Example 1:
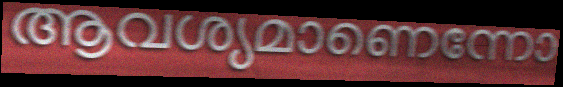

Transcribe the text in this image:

ആവശ്യമാണെന്നോ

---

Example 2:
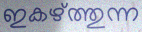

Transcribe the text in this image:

ഇകഴ്ത്തുന്ന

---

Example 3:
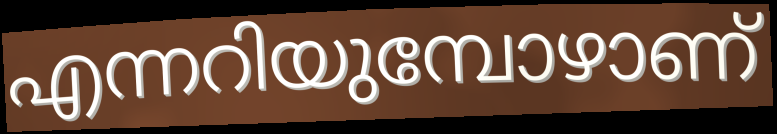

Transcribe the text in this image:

എന്നറിയുമ്പോഴാണ്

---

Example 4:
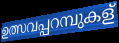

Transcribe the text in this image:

ഉത്സവപ്പറമ്പുകള്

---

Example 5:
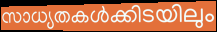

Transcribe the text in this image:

സാധ്യതകൾക്കിടയിലും